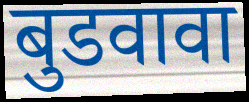
बुडवावा